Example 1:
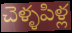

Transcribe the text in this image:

చెళ్ళపిళ్ల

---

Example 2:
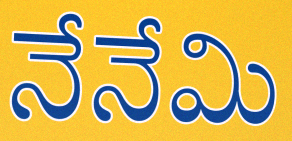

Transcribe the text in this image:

నేనేమి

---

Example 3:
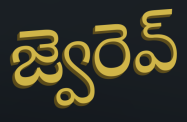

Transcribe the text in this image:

జ్వెరెవ్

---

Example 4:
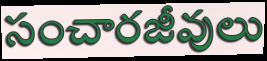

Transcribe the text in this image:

సంచారజీవులు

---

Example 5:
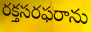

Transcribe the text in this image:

రక్తసరఫరాను